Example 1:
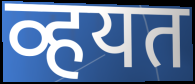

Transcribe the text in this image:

व्हयत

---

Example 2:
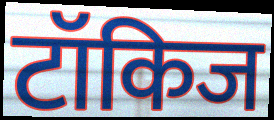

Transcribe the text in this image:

टॉकिज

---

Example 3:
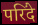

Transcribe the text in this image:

परिंदे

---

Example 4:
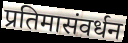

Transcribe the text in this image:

प्रतिमासंवर्धन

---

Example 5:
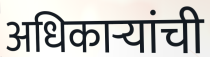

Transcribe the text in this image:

अधिकाऱ्यांची